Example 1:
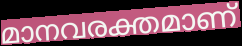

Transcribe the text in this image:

മാനവരക്തമാണ്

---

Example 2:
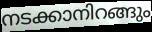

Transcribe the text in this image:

നടക്കാനിറങ്ങും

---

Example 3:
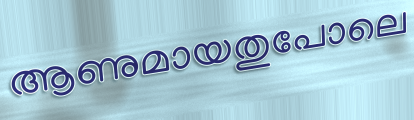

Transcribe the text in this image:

ആണുമായതുപോലെ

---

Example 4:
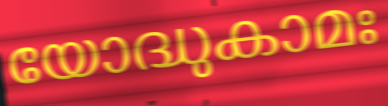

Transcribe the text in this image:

യോദ്ധുകാമഃ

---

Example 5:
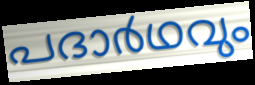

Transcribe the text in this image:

പദാർഥവും